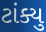
ટાંક્યુ